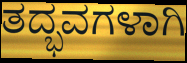
ತದ್ಭವಗಳಾಗಿ